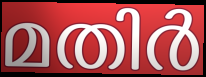
മതിർ